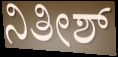
ನಿತೀಶ್